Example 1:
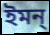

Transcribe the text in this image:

ইমন্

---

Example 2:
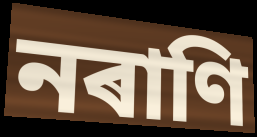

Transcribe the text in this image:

নৰাণি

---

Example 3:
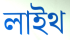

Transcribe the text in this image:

লাইথ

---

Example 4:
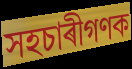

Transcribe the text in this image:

সহচাৰীগণক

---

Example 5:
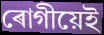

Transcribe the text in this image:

ৰোগীয়েই